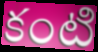
కంటి